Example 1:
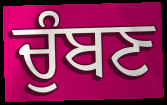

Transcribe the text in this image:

ਚੁੰਬਣ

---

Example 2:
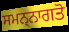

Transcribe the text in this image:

ਸਮਨ੍ਨਾਗਤੋ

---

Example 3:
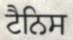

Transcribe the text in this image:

ਟੈਨਿਸ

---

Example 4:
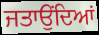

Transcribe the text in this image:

ਜਤਾਉੰਦਿਆਂ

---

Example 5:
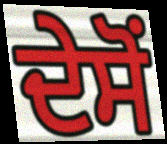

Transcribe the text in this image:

ਦੇਸੋਂ